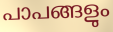
പാപങ്ങളും